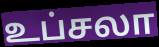
உப்சலா